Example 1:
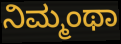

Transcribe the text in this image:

ನಿಮ್ಮಂಥಾ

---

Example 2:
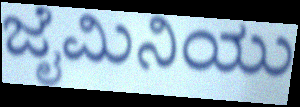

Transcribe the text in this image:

ಜೈಮಿನಿಯು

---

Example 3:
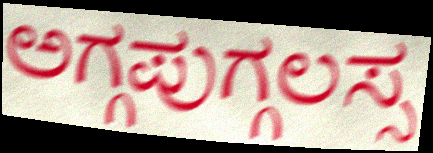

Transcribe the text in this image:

ಅಗ್ಗಪುಗ್ಗಲಸ್ಸ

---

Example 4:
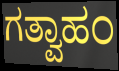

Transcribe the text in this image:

ಗತ್ವಾಹಂ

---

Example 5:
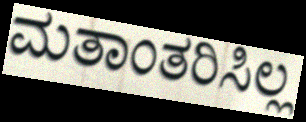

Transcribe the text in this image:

ಮತಾಂತರಿಸಿಲ್ಲ